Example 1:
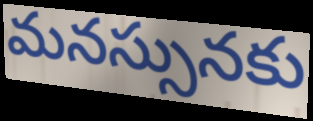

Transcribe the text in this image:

మనస్సునకు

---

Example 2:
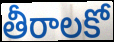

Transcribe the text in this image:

తీరాలకో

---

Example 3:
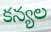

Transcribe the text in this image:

కన్యల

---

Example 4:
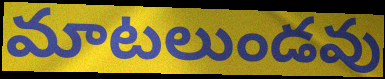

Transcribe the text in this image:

మాటలుండవు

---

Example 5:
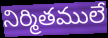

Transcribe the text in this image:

నిర్మితములే